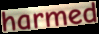
harmed